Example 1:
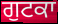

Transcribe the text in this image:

ਗੁਟਕਾ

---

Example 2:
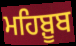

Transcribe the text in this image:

ਮਹਿਬ਼ੂਬ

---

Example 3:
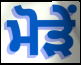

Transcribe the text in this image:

ਮੋੜੇਂ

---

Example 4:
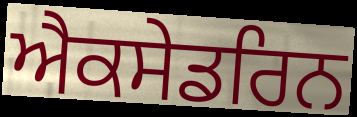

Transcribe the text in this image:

ਐਕਸੇਡਰਿਨ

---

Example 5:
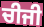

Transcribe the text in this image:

ਚੀਜੀ